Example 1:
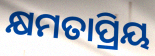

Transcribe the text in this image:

କ୍ଷମତାପ୍ରିୟ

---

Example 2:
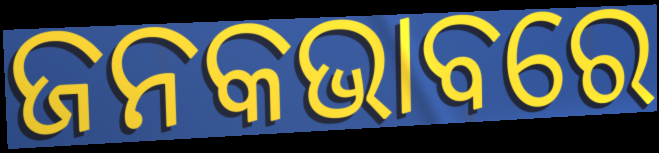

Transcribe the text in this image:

ଜନକଭାବରେ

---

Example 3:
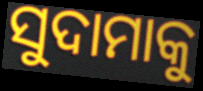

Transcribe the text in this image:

ସୁଦାମାକୁ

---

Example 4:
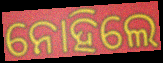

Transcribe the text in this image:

ନୋହିଲେ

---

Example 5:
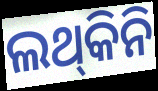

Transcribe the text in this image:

ଲଥ୍‌କିନି